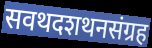
सवथदशथनसंग्रह